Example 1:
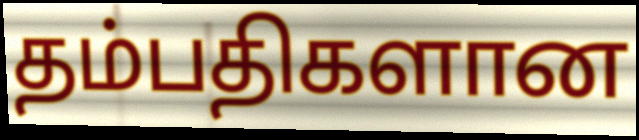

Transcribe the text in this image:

தம்பதிகளான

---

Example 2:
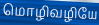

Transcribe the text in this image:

மொழிவழியே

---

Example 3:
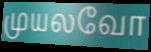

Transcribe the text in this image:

முயலவோ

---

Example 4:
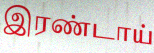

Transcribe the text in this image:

இரண்டாய்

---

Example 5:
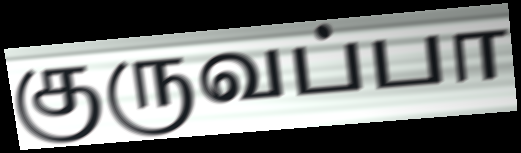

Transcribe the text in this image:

குருவப்பா